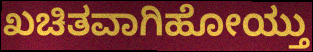
ಖಚಿತವಾಗಿಹೋಯ್ತು